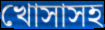
খোসাসহ